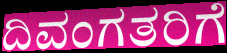
ದಿವಂಗತರಿಗೆ